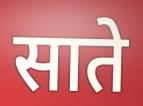
साते